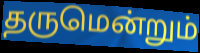
தருமென்றும்